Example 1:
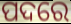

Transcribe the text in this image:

ପଦରେ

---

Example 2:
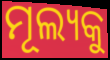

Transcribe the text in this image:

ମୂଲ୍ୟକୁ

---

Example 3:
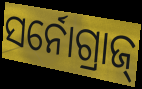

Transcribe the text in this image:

ସର୍ନୋଗ୍ରାଜ୍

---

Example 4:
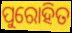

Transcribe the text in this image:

ପୁରୋହିତ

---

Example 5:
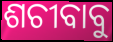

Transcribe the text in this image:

ଶଚୀବାବୁ